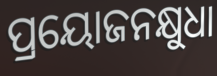
ପ୍ରୟୋଜନକ୍ଷୁଧା